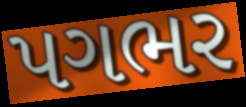
પગભર